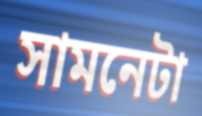
সামনেটা